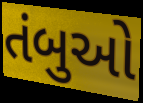
તંબુઓ